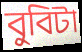
বুবিটা